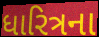
ધારિત્રના